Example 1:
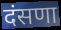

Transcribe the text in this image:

दंसणा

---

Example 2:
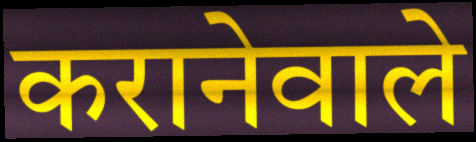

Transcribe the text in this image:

करानेवाले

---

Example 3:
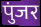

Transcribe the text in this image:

पुंजर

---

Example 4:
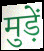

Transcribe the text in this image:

मुड़ें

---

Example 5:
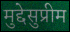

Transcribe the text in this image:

मुद्देसुप्रीम